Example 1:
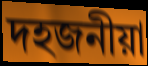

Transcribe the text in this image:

দহজনীয়া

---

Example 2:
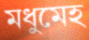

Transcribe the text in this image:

মধুমেহ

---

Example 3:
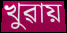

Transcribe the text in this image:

খুৱায়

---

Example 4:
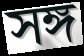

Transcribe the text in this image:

সঙ্গ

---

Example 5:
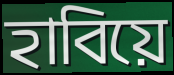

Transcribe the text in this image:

হাবিয়ে